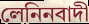
লেনিনবাদী